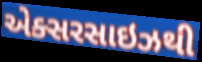
એક્સરસાઇઝથી